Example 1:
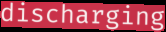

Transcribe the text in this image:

discharging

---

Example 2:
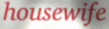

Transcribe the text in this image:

housewife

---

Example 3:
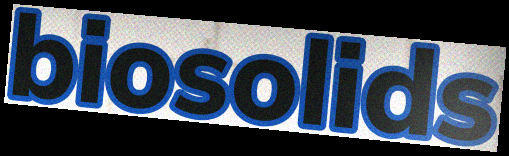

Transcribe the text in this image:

biosolids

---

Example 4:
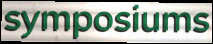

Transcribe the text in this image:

symposiums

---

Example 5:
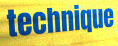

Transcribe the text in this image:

technique